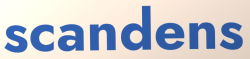
scandens